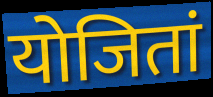
योजितां